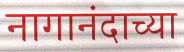
नागानंदाच्या